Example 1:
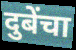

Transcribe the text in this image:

दुबेंचा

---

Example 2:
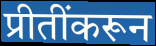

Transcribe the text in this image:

प्रीतींकरून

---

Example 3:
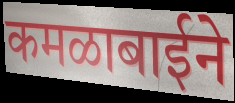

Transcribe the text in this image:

कमळाबाईने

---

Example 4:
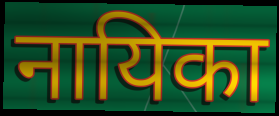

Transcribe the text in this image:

नायिका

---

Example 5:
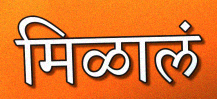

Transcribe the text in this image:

मिळालं